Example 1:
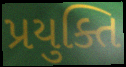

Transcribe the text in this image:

પ્રયુક્તિ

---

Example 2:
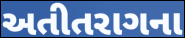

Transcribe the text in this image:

અતીતરાગના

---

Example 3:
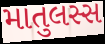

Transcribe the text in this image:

માતુલસ્સ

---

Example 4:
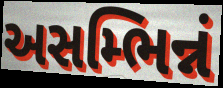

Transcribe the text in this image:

અસમ્ભિન્નં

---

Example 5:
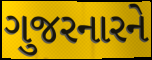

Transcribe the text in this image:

ગુજરનારને